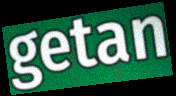
getan